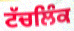
ਟੱਚਲਿੰਕ